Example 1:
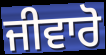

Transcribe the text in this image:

ਜੀਵਾਰੋ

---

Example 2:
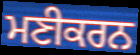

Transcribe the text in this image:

ਮਣੀਕਰਨ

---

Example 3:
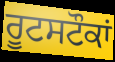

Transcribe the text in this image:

ਰੂਟਸਟੌਕਾਂ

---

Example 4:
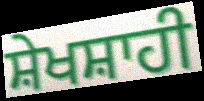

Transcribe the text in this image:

ਸ਼ੇਖਸ਼ਾਹੀ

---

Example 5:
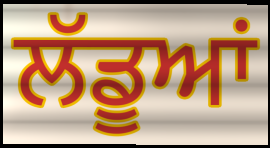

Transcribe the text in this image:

ਲੱਡੂਆਂ